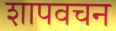
शापवचन